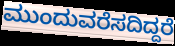
ಮುಂದುವರೆಸದಿದ್ದರೆ